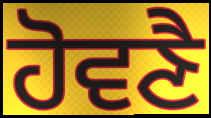
ਹੋਵਣੈ